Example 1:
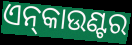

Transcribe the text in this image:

ଏନ୍‌କାଉଣ୍ଟର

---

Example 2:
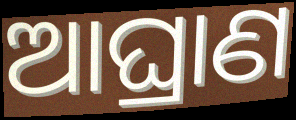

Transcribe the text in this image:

ଆଘ୍ରାଣ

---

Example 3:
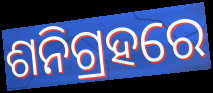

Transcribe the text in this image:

ଶନିଗ୍ରହରେ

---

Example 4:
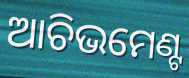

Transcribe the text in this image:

ଆଚିଭମେଣ୍ଟ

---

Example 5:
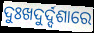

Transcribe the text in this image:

ଦୁଃଖଦୁର୍ଦ୍ଦଶାରେ